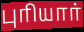
புரியார்